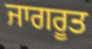
ਜਾਗਰੂਤ